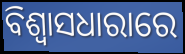
ବିଶ୍ଵାସଧାରାରେ